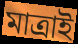
মাত্রাই